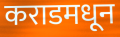
कराडमधून